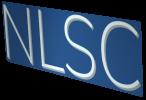
NLSC